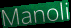
Manoli